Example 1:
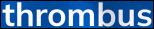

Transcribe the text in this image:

thrombus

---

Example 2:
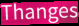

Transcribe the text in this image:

Thanges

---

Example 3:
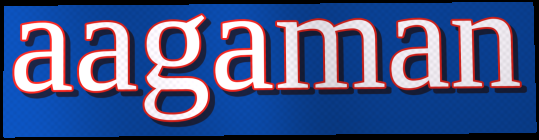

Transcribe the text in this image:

aagaman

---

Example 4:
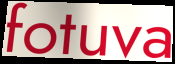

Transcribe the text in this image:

fotuva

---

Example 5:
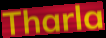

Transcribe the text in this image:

Tharla